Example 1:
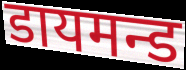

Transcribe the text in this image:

डायमन्ड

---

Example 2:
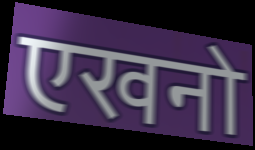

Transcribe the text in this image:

एखनो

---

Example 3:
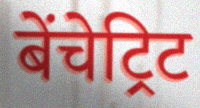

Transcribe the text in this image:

बेंचेट्रिट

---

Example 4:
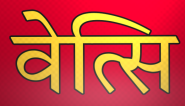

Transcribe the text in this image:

वेत्सि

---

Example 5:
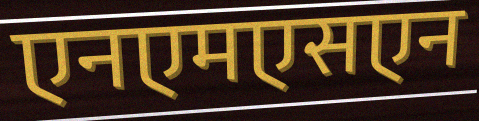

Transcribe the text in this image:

एनएमएसएन